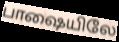
பாஷையிலே